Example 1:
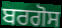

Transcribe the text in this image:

ਬਰਗੋਸ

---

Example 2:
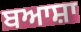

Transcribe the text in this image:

ਬਆਸ਼ਾ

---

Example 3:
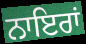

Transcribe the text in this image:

ਨਾਇਰਾਂ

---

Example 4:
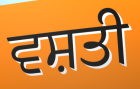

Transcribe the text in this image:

ਵਸ਼ਤੀ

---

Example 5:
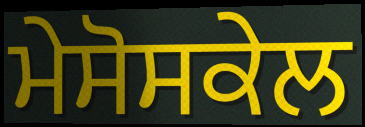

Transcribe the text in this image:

ਮੇਸੋਸਕੇਲ